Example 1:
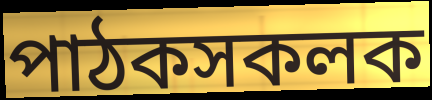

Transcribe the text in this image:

পাঠকসকলক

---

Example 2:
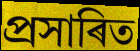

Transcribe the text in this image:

প্ৰসাৰিত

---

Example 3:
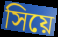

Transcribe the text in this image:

সিয়ে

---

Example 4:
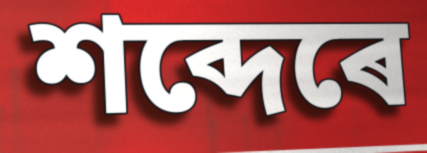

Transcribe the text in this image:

শব্দেৰে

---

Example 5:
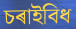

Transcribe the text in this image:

চৰাইবিধ